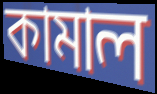
কামাল